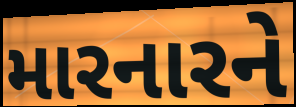
મારનારને